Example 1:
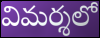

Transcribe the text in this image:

విమర్శలో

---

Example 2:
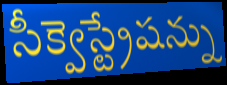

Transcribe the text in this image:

సీక్వెస్ట్రేషన్ను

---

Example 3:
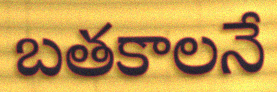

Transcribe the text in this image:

బతకాలనే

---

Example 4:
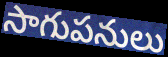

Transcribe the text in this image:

సాగుపనులు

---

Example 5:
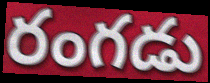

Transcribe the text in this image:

రంగడు